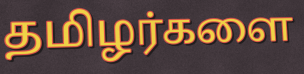
தமிழர்களை